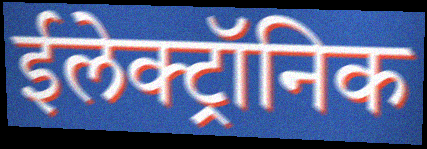
ईलेक्ट्रॉनिक